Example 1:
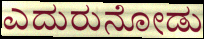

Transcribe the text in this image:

ಎದುರುನೋಡು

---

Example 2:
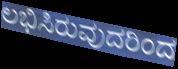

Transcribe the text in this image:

ಲಭಿಸಿರುವುದರಿಂದ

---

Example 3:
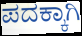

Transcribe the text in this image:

ಪದಕ್ಕಾಗಿ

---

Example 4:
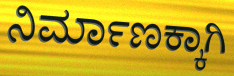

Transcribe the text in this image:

ನಿರ್ಮಾಣಕ್ಕಾಗಿ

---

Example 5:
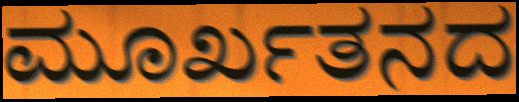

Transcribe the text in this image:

ಮೂರ್ಖತನದ